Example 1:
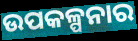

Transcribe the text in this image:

ଉପକଳ୍ପନାର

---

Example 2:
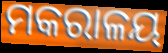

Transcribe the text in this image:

ମକରାଳୟ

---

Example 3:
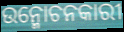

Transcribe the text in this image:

ଉନ୍ମୋଚନକାରୀ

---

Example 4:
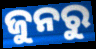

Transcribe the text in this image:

ଜୁନରୁ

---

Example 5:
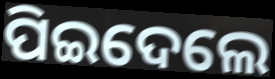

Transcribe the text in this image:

ପିଇଦେଲେ